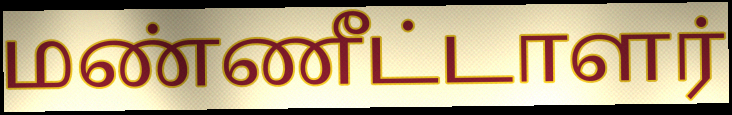
மண்ணீட்டாளர்